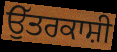
ਉੱਤਰਕਾਸ਼ੀ